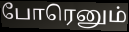
போரெனும்